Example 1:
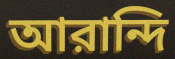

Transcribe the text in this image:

আরান্দি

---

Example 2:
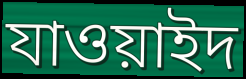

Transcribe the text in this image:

যাওয়াইদ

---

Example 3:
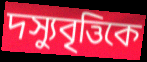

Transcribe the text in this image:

দস্যুবৃত্তিকে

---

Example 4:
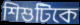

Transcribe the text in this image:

শিশুটিকে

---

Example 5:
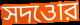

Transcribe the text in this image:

সদওোর